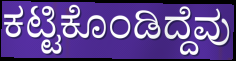
ಕಟ್ಟಿಕೊಂಡಿದ್ದೆವು